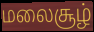
மலைசூழ்